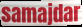
samajdar